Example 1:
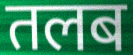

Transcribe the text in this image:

तलब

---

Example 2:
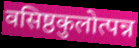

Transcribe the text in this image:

वसिष्ठकुलोत्पन्न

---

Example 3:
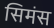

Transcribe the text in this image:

सिमंस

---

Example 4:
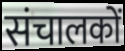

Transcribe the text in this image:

संचालकों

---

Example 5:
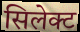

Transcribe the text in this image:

सिलेक्ट